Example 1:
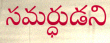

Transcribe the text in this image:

సమర్ధుడని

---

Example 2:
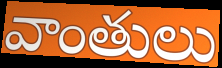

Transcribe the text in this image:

వాంతులు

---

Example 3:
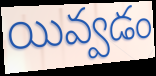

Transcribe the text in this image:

యివ్వడం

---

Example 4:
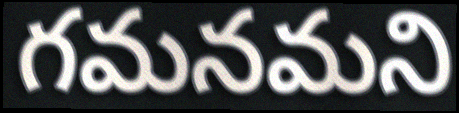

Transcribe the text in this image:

గమనమని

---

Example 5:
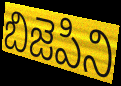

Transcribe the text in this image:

బిజెపిని